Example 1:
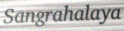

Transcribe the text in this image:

Sangrahalaya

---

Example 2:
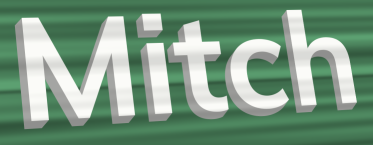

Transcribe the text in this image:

Mitch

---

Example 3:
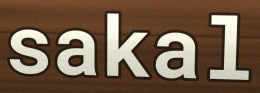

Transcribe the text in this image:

sakal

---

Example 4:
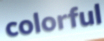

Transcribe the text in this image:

colorful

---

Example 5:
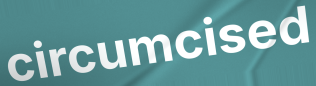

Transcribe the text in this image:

circumcised